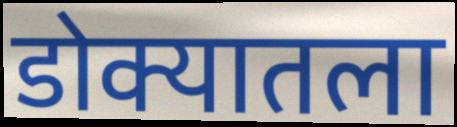
डोक्यातला